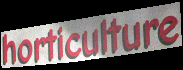
horticulture